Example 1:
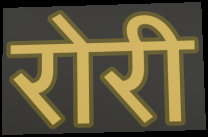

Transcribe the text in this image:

रोरी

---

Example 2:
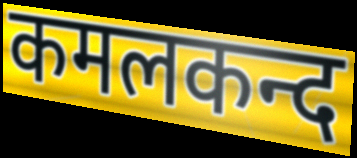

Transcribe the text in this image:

कमलकन्द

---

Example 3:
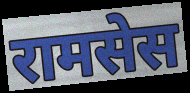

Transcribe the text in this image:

रामसेस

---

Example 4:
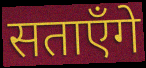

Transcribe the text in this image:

सताएँगे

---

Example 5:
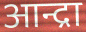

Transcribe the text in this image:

आन्द्रा